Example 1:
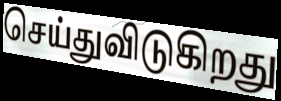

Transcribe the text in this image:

செய்துவிடுகிறது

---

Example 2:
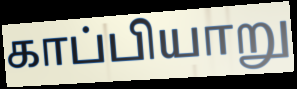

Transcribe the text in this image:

காப்பியாறு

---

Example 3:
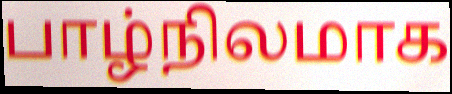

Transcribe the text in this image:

பாழ்நிலமாக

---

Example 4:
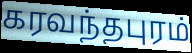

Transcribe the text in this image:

கரவந்தபுரம்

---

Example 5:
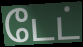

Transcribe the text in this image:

டேட்